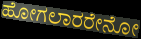
ಹೋಗಲಾರರೇನೋ